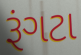
રૂંગટા